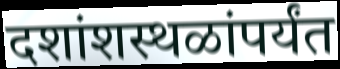
दशांशस्थळांपर्यंत